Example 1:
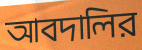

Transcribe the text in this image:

আবদালির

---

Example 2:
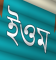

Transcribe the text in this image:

ইওম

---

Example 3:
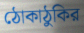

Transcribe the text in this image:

ঠোকাঠুকির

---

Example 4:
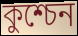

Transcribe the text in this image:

কুশ্চেন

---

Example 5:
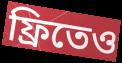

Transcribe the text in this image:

ফ্রিতেও